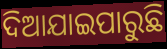
ଦିଆଯାଇପାରୁଛି